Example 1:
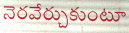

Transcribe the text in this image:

నెరవేర్చుకుంటూ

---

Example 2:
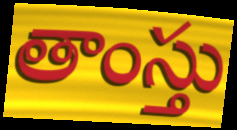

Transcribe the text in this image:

తాంస్తు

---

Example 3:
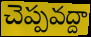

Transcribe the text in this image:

చెప్పవద్దా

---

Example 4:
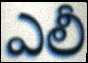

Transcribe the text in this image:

ఎలీ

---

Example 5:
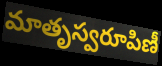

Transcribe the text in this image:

మాతృస్వరూపిణీ